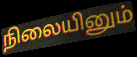
நிலையினும்